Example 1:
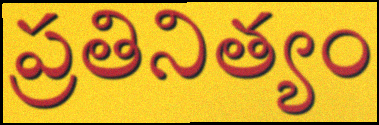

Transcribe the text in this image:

ప్రతినిత్యం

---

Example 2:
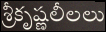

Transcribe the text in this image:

శ్రీకృష్ణలీలలు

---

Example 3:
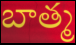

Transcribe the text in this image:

బాత్మ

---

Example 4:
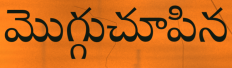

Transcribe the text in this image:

మొగ్గుచూపిన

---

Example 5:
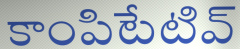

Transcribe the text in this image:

కాంపిటేటివ్